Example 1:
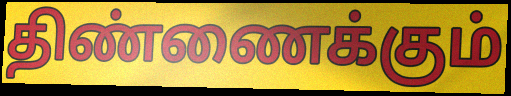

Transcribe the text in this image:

திண்ணைக்கும்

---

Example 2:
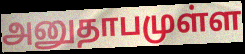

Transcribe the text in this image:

அனுதாபமுள்ள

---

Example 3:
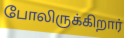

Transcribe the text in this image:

போலிருக்கிறார்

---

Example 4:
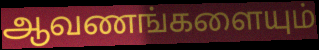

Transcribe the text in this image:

ஆவணங்களையும்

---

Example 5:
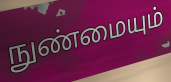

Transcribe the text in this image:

நுண்மையும்